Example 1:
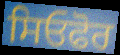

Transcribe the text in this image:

ਸਿਓਫੋਰ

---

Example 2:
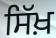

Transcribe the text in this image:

ਸਿੱਖ਼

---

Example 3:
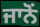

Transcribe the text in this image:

ਜਾਨੋਂ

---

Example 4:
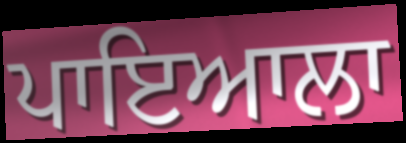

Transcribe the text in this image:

ਪਾਇਆਲਾ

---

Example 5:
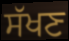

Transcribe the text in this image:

ਸੱਖਣ